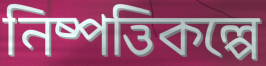
নিষ্পত্তিকল্পে